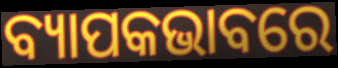
ବ୍ୟାପକଭାବରେ